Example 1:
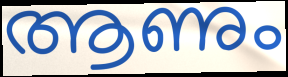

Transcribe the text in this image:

ആണും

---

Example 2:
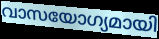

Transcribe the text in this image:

വാസയോഗ്യമായി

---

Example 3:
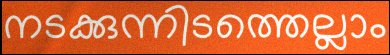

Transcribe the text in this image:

നടക്കുന്നിടത്തെല്ലാം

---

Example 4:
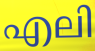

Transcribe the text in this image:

എലി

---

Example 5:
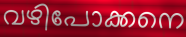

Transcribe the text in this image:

വഴിപോക്കനെ